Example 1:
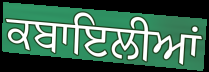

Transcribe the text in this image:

ਕਬਾਇਲੀਆਂ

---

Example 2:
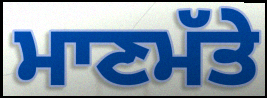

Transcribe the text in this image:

ਮਾਣਮੱਤੇ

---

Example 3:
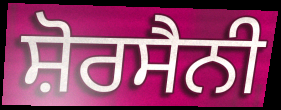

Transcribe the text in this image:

ਸ਼ੋਰਸੈਨੀ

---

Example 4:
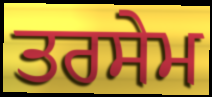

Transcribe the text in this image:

ਤਰਸੇਮ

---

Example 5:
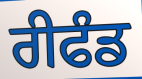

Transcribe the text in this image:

ਰੀਫੰਡ